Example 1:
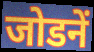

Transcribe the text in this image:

जोडनें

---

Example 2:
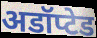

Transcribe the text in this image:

अडॉप्टेड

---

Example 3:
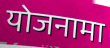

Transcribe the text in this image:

योजनामा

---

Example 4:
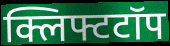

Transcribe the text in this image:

क्लिफ्टटॉप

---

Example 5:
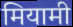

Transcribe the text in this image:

मियामी